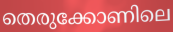
തെരുക്കോണിലെ